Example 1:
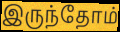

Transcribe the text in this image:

இருந்தோம்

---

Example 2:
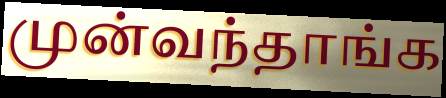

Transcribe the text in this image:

முன்வந்தாங்க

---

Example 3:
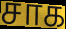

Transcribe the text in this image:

சாக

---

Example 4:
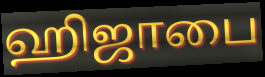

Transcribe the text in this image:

ஹிஜாபை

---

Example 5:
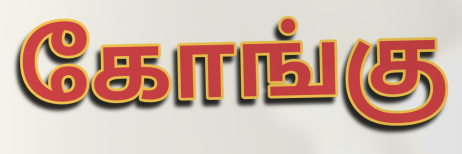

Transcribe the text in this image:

கோங்கு